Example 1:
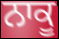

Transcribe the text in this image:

ਨਾਕੂ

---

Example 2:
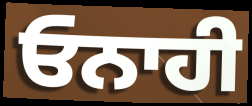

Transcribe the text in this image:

ਓਨਾਹੀ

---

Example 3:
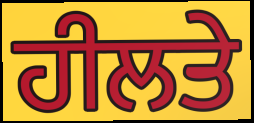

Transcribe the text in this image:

ਹੀਲਤੇ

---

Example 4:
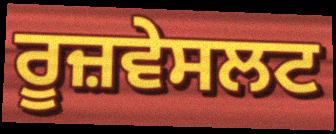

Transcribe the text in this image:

ਰੂਜ਼ਵੇਸਲਟ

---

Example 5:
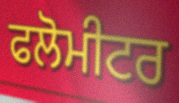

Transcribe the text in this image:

ਫਲੋਮੀਟਰ